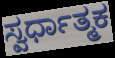
ಸ್ವರ್ಧಾತ್ಮಕ